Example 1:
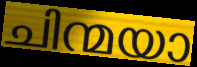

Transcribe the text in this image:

ചിന്മയാ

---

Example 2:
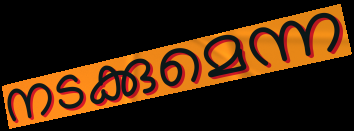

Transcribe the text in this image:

നടക്കുമെന്ന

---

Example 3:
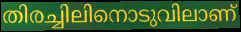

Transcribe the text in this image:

തിരച്ചിലിനൊടുവിലാണ്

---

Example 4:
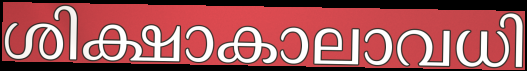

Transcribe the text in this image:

ശിക്ഷാകാലാവധി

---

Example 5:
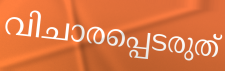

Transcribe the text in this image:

വിചാരപ്പെടരുത്